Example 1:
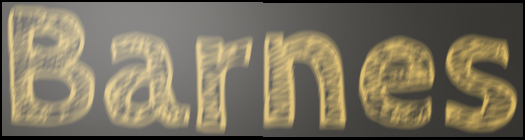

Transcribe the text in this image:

Barnes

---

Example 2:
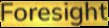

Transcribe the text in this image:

Foresight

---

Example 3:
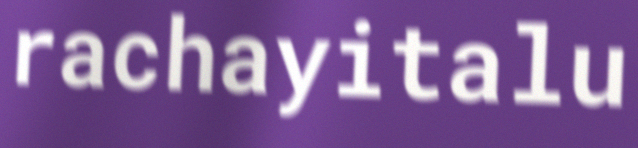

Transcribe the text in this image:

rachayitalu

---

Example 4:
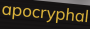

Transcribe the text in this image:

apocryphal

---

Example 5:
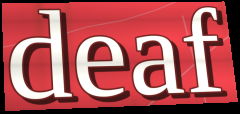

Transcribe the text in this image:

deaf